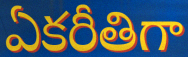
ఏకరీతిగా